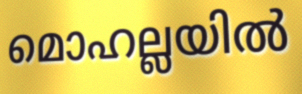
മൊഹല്ലയിൽ